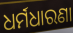
ଧର୍ମଧାରଣା